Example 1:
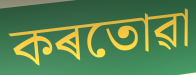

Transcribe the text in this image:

কৰতোৱা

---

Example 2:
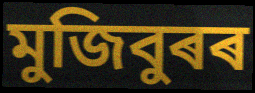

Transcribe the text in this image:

মুজিবুৰৰ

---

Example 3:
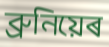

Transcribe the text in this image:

ব্ৰুনিয়েৰ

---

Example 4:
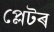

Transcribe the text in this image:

প্লেটৰ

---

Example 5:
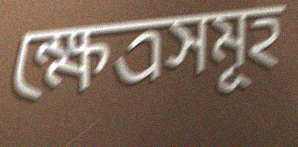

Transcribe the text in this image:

ক্ষেত্ৰসমূহ